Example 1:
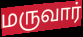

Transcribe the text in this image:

மருவார்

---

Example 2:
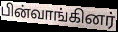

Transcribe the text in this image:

பின்வாங்கினர்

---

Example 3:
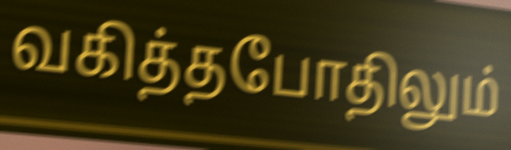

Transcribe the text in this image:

வகித்தபோதிலும்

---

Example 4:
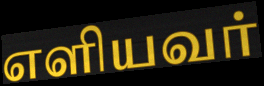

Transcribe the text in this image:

எளியவர்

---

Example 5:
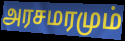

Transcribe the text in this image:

அரசமரமும்